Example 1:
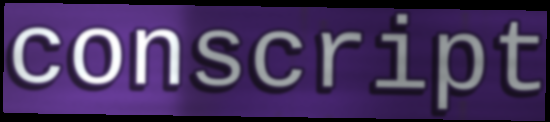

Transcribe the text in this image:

conscript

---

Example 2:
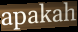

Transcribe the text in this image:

apakah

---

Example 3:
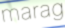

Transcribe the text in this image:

marag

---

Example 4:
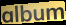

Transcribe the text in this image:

album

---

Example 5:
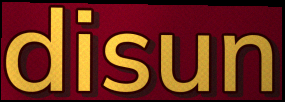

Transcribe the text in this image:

disun